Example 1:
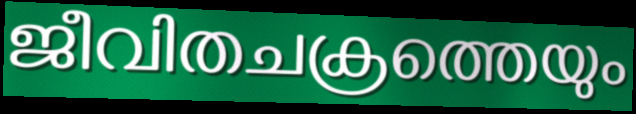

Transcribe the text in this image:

ജീവിതചക്രത്തെയും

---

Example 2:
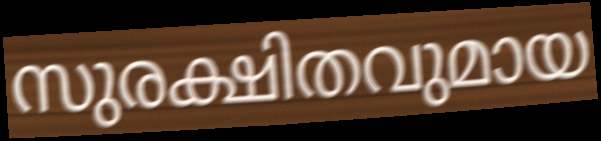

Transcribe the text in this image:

സുരക്ഷിതവുമായ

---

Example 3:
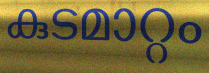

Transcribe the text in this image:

കുടമാറ്റം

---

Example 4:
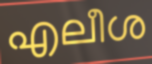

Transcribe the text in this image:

എലീശ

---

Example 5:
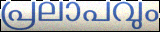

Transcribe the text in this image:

പ്രലാപവും